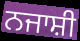
ਨਜਾਸ਼ੀ